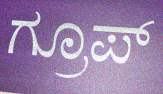
ಗ್ರೂಪ್